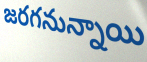
జరగనున్నాయి